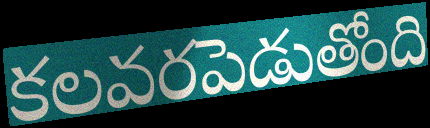
కలవరపెడుతోంది